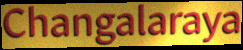
Changalaraya